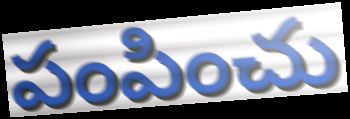
పంపించు